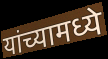
यांच्यामध्ये